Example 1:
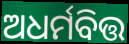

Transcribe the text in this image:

ଅଧର୍ମବିତ୍ତ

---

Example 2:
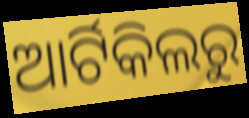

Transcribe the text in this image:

ଆର୍ଟିକିଲରୁ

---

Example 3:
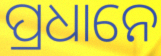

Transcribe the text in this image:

ପ୍ରଧାନେ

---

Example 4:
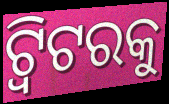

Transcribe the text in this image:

ଟ୍ୱିଟରକୁ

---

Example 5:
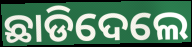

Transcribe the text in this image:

ଛାଡିଦେଲେ